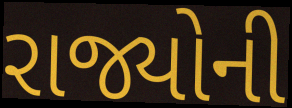
રાજ્યોની